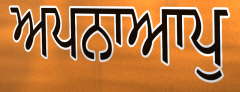
ਅਪਨਾਆਪੁ